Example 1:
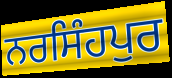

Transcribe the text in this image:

ਨਰਸਿੰਹਪੁਰ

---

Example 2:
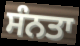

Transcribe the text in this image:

ਸੰਨਤਾ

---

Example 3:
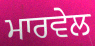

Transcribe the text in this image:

ਮਾਰਵੇਲ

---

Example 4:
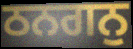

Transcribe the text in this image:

ਠਨਗਨੁ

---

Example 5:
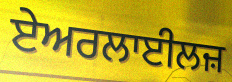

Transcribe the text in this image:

ਏਅਰਲਾਈਲਜ਼